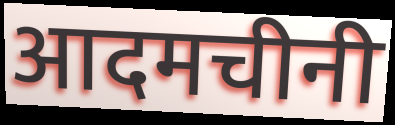
आदमचीनी